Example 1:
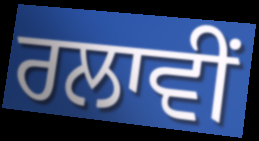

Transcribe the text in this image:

ਰਲਾਵੀਂ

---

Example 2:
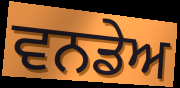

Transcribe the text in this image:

ਵਨਡੇਅ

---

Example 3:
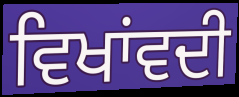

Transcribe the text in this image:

ਵਿਖਾਂਵਦੀ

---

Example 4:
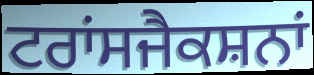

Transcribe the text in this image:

ਟਰਾਂਸਜੈਕਸ਼ਨਾਂ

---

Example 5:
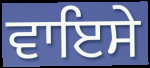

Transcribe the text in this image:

ਵਾਇਸੇ